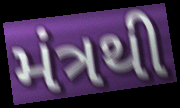
મંત્રથી